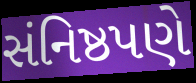
સંનિષ્ઠપણે